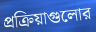
প্রক্রিয়াগুলোর